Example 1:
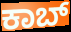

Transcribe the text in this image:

ಕಾಬ್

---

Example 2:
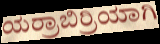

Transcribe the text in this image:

ಯರ್ರಾಬಿರ್ರಿಯಾಗಿ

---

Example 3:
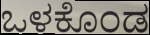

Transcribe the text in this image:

ಒಳಕೊಂಡ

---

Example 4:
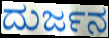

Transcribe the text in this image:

ದುರ್ಜನ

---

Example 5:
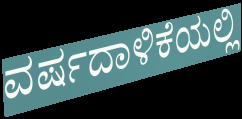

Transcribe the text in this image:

ವರ್ಷದಾಳಿಕೆಯಲ್ಲಿ